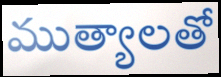
ముత్యాలతో